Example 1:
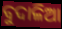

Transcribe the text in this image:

ବୁଦାଳିଆ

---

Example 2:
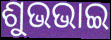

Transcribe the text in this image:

ଶୁଭଭାଇ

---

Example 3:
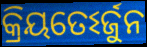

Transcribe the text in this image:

କ୍ରିୟତେଽର୍ଜୁନ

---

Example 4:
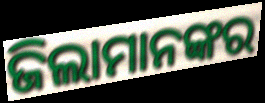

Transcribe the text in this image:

ଜିଲାମାନଙ୍କର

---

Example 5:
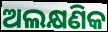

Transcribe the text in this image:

ଅଲକ୍ଷଣିକ